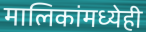
मालिकांमध्येही